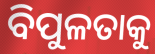
ବିପୁଳତାକୁ